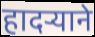
हादऱ्याने